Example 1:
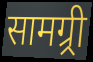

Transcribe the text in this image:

सामग्र्री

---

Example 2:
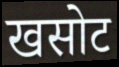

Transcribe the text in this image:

खसोट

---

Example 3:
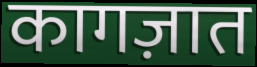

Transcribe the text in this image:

कागज़ात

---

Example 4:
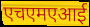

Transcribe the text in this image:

एचएमएआई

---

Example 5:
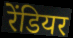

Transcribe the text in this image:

रेंडियर